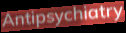
Antipsychiatry